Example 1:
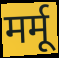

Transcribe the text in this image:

मर्मू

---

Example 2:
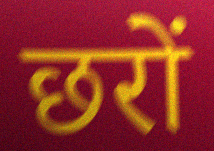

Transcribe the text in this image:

छरों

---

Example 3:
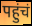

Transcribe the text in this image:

पहुंचं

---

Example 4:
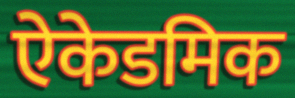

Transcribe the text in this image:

ऐकेडमिक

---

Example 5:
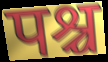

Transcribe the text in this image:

पश्च